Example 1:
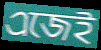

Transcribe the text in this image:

এজেই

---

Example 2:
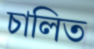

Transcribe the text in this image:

চালিত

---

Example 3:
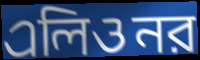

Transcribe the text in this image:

এলিওনর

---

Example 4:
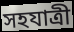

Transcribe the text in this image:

সহযাত্রী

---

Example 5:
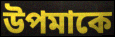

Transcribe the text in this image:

উপমাকে